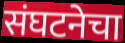
संघटनेचा